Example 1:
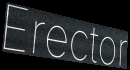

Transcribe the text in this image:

Erector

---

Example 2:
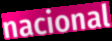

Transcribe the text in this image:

nacional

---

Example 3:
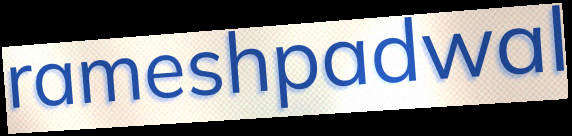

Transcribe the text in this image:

rameshpadwal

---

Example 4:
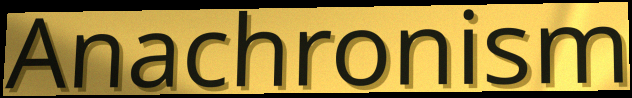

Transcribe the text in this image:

Anachronism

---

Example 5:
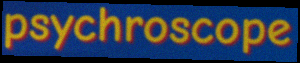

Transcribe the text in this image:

psychroscope